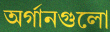
অর্গানগুলো